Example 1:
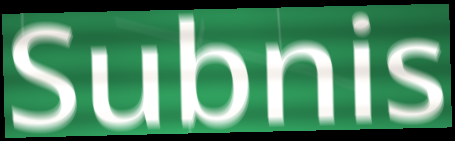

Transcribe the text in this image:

Subnis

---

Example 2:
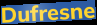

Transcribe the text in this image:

Dufresne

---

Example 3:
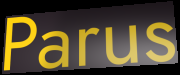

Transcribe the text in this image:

Parus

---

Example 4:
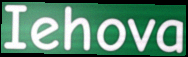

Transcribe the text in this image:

Iehova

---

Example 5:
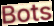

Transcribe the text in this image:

Bots